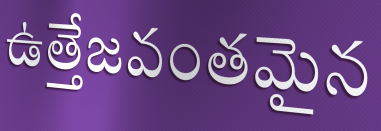
ఉత్తేజవంతమైన